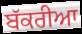
ਬੱਕਰੀਆ